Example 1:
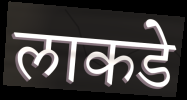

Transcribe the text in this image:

लाकडे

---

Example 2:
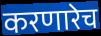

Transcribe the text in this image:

करणारेच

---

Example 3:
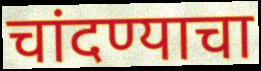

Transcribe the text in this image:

चांदण्याचा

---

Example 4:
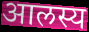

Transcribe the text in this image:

आलस्य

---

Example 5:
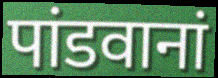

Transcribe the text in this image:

पांडवानां